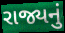
રાજ્યનું